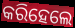
କରିହେଲେ